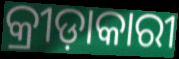
କ୍ରୀଡ଼ାକାରୀ